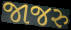
જાજરુ